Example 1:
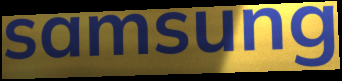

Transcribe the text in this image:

samsung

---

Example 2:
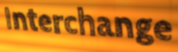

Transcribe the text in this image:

Interchange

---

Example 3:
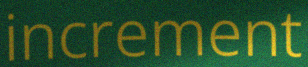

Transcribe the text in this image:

increment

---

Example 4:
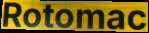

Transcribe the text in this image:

Rotomac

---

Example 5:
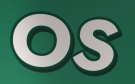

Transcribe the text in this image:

OS